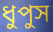
ধুপুস